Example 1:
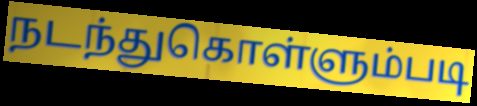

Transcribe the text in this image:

நடந்துகொள்ளும்படி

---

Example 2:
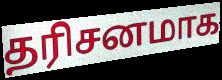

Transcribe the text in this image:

தரிசனமாக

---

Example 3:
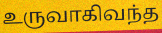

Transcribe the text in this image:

உருவாகிவந்த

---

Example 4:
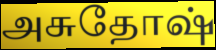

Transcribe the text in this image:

அசுதோஷ்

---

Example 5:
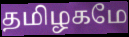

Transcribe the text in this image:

தமிழகமே